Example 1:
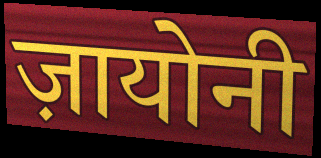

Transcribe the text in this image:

ज़ायोनी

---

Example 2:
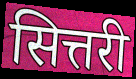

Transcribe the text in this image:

सित्तरी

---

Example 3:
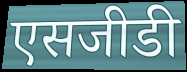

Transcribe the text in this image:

एसजीडी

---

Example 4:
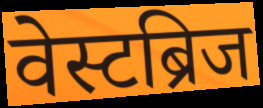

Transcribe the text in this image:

वेस्टब्रिज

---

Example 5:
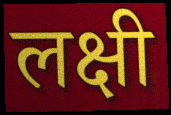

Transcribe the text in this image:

लक्षी